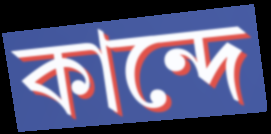
কান্দে